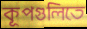
কূপগুলিতে